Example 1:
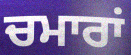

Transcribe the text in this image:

ਚਮਾਰਾਂ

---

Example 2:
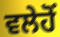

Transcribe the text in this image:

ਵਲੇਹੋਂ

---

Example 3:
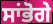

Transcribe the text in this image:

ਸਾਂਭੋਗੇ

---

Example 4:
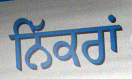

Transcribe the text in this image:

ਨਿੱਕਰਾਂ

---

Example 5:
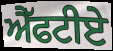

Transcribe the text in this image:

ਐੱਫਟੀਏ